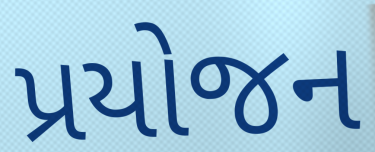
પ્રયોજન